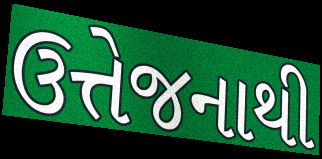
ઉત્તેજનાથી